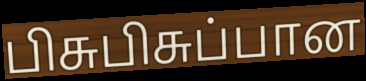
பிசுபிசுப்பான